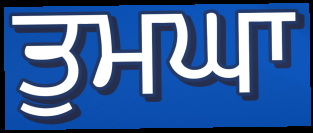
ਤੁਮਘਾ